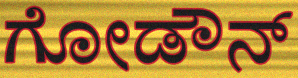
ಗೋಡೌನ್